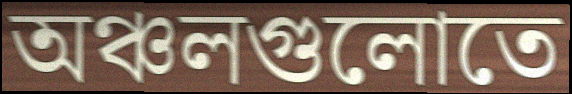
অঞ্চলগুলোতে